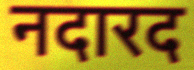
नदारद